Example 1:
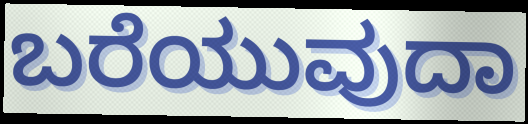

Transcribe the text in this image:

ಬರೆಯುವುದಾ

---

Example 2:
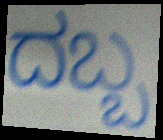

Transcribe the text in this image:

ದಬ್ಬ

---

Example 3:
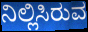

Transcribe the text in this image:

ನಿಲ್ಲಿಸಿರುವ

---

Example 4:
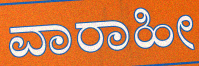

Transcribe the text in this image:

ವಾರಾಹೀ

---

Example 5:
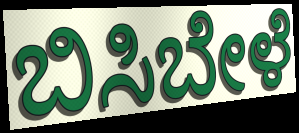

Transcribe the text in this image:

ಬಿಸಿಬೇಳೆ